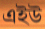
এইউ